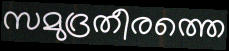
സമുദ്രതീരത്തെ